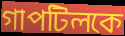
গাপটিলকে